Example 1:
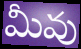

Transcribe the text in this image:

మీవు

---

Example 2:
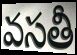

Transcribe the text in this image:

వసతీ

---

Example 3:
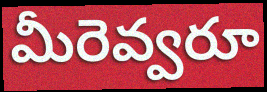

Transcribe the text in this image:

మీరెవ్వరూ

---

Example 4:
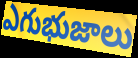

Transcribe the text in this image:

ఎగుభుజాలు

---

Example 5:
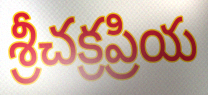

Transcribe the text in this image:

శ్రీచక్రప్రియ